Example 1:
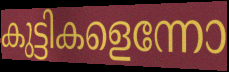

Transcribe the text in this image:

കുട്ടികളെന്നോ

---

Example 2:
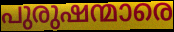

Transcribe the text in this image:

പുരുഷന്മാരെ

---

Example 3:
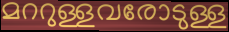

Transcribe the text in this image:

മററുള്ളവരോടുള്ള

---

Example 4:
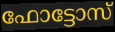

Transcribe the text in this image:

ഫോട്ടോസ്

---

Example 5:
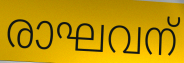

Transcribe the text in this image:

രാഘവന്